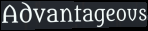
Advantageous